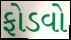
ફોડવો